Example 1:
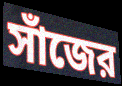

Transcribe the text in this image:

সাঁজের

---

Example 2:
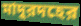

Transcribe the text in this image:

মাদুরদহের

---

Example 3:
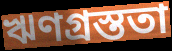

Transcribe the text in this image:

ঋণগ্রস্ততা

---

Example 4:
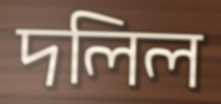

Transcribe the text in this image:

দলিল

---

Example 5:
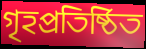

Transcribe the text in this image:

গৃহপ্রতিষ্ঠিত